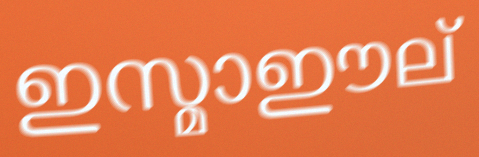
ഇസ്മാഈല്